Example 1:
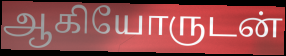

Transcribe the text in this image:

ஆகியோருடன்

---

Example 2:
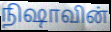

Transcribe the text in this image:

நிஷாவின்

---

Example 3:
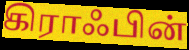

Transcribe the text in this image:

கிராஃபின்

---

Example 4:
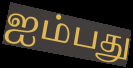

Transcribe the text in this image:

ஐம்பது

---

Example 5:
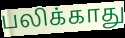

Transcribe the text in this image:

பலிக்காது